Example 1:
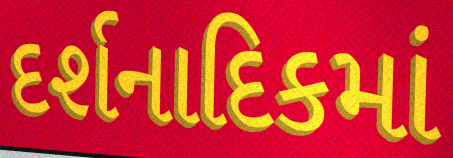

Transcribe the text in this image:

દર્શનાદિકમાં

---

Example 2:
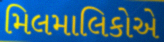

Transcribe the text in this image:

મિલમાલિકોએ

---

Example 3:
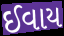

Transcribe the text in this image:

ઈવાય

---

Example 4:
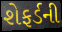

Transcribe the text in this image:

શેફર્ડની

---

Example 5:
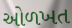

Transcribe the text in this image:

ઓળખત